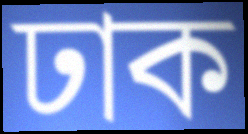
ঢাক